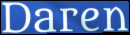
Daren